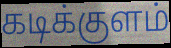
கடிக்குளம்